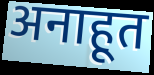
अनाहूत